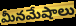
మీనమేషాలు